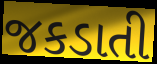
જકડાતી